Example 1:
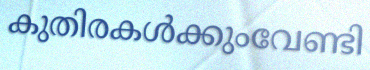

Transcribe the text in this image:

കുതിരകൾക്കുംവേണ്ടി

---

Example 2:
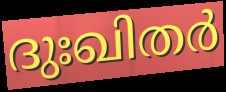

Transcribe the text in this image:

ദുഃഖിതർ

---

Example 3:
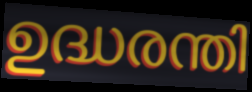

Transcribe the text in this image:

ഉദ്ധരന്തി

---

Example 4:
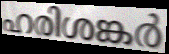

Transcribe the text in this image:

ഹരിശങ്കർ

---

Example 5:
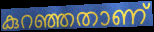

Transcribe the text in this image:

കുറഞ്ഞതാണ്